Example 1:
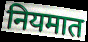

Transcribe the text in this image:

नियमात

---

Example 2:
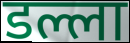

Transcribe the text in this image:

डल्ला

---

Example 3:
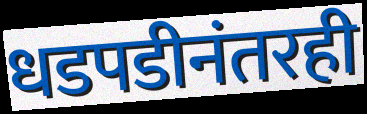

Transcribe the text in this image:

धडपडीनंतरही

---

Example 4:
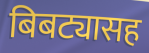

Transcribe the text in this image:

बिबट्यासह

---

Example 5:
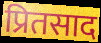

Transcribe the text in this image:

प्रितसाद